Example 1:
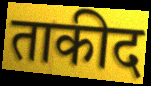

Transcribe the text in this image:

ताकीद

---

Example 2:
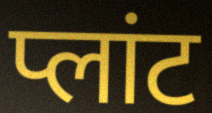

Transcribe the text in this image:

प्‍लांट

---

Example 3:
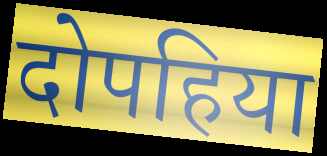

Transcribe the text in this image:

दोपहिया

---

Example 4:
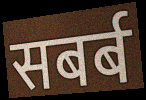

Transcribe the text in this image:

सबर्ब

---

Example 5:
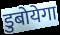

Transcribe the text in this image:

डुबोयेगा